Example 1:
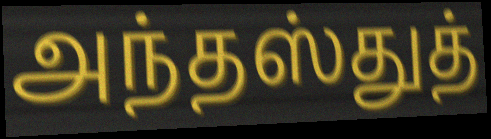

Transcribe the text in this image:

அந்தஸ்துத்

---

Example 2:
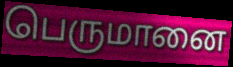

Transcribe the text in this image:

பெருமானை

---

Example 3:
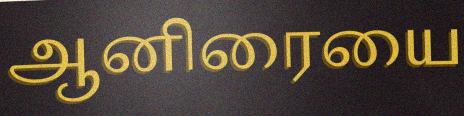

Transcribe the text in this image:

ஆனிரையை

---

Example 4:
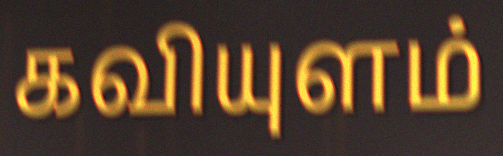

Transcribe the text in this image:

கவியுளம்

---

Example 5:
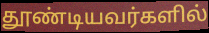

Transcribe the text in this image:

தூண்டியவர்களில்